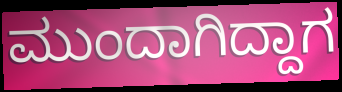
ಮುಂದಾಗಿದ್ದಾಗ